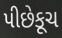
પીછેકૂચ